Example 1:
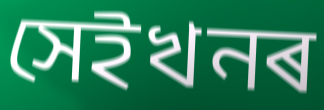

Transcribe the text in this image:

সেইখনৰ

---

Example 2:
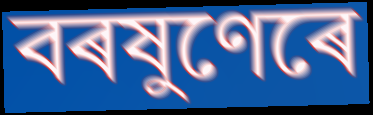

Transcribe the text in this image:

বৰষুণেৰে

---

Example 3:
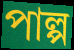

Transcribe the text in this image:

পাল্প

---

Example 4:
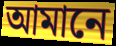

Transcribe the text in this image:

আমানে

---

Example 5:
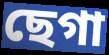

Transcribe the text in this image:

ছেগা